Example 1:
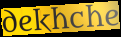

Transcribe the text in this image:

dekhche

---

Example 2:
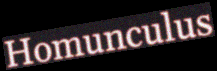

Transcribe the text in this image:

Homunculus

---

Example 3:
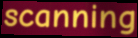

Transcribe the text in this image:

scanning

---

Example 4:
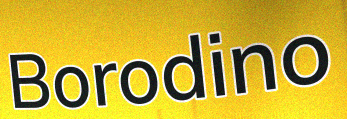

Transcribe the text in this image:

Borodino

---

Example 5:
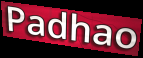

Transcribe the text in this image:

Padhao